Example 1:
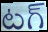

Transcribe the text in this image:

టగ్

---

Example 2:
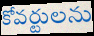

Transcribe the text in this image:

కోవర్టులను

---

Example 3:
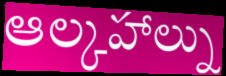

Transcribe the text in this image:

ఆల్కహాల్ను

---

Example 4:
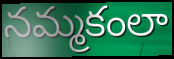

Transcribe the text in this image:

నమ్మకంలా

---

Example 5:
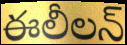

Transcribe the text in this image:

ఈలీలన్